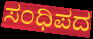
ಸಂಧಿಪದ